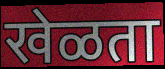
खेळता